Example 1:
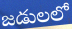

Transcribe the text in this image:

జడులలో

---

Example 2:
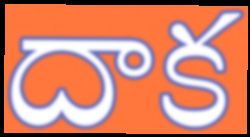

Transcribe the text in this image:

దాక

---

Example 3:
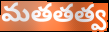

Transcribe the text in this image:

మతతత్వ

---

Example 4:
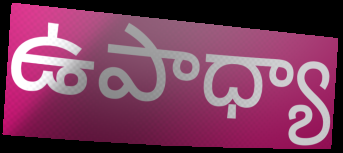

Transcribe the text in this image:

ఉపాధ్యా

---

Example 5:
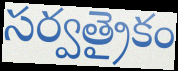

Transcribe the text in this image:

సర్వత్రైకం